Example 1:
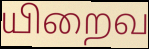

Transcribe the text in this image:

யிறைவ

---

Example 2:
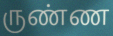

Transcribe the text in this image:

ருண்ண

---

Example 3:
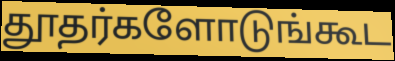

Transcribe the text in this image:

தூதர்களோடுங்கூட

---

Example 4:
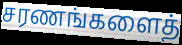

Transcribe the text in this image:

சரணங்களைத்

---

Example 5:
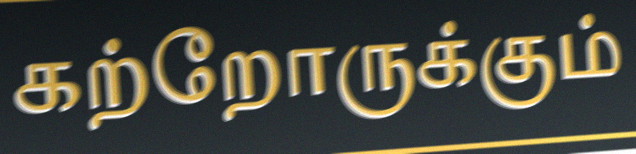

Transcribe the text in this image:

கற்றோருக்கும்